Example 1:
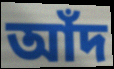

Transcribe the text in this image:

আঁদ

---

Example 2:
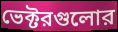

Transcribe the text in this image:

ভেক্টরগুলোর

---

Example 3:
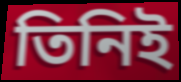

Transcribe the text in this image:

তিনিই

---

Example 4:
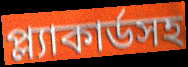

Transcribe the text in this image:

প্ল্যাকার্ডসহ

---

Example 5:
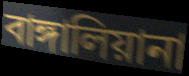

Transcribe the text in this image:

বাঙ্গালিয়ানা